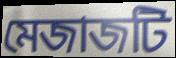
মেজাজটি